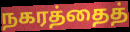
நகரத்தைத்